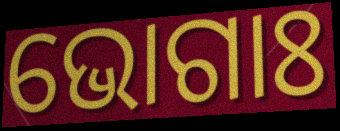
ଭୋଗାଃ